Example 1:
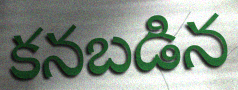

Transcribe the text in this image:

కనబడిన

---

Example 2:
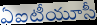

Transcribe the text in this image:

ఏఐటీయూసీ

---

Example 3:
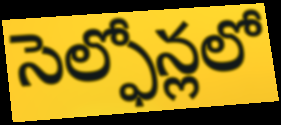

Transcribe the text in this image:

సెల్ఫోన్లలో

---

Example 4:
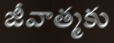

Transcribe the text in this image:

జీవాత్మకు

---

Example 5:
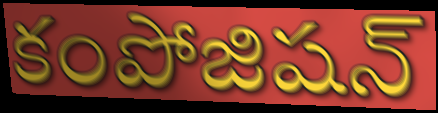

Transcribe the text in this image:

కంపోజిషన్